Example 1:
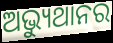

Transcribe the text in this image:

ଅଭ୍ୟୁଥାନର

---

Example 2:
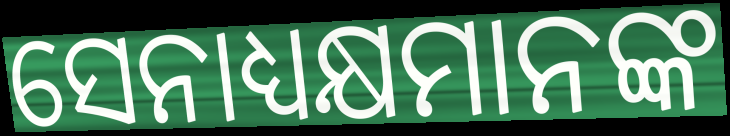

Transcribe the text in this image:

ସେନାଧ୍ୟକ୍ଷମାନଙ୍କ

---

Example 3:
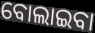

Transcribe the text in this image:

ବୋଲାଇବା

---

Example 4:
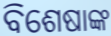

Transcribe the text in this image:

ବିଶେଷାଙ୍କ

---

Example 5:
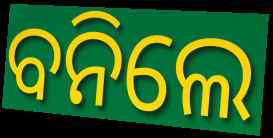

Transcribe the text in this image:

ବନିଲେ